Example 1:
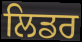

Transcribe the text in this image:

ਲਿਡਰ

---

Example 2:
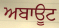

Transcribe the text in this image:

ਅਬਾਊਟ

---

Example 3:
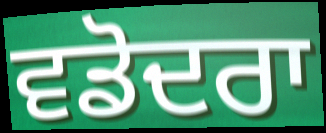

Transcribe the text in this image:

ਵਡੋਦਰਾ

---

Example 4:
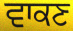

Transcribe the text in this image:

ਵਾਕਣ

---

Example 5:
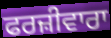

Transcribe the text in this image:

ਫਰਜ਼ੀਵਾਰਾ